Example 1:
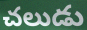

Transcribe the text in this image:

చలుడు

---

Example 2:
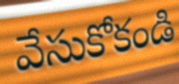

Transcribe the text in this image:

వేసుకోకండి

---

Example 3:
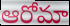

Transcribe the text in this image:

ఆరోమా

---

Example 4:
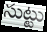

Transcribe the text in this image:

సుట్టు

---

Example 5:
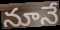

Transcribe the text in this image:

నూనే